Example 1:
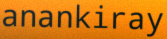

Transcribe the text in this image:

anankiray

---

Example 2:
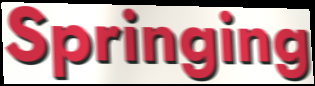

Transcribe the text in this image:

Springing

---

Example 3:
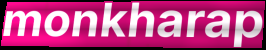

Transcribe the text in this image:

monkharap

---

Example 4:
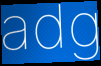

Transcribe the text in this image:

adg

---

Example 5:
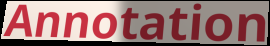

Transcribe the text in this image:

Annotation